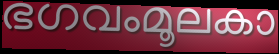
ഭഗവംമൂലകാ